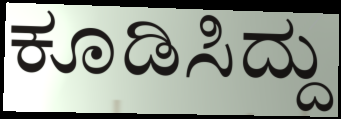
ಕೂಡಿಸಿದ್ದು